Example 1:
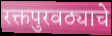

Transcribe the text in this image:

रक्तपुरवठ्याचे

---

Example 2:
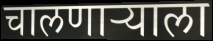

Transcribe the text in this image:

चालणाऱ्याला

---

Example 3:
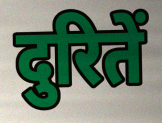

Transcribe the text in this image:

दुरितें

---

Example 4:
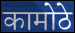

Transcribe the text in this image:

कामोठे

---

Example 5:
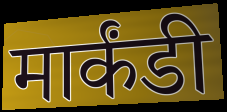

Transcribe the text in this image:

मार्कंडी